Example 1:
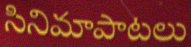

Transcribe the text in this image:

సినిమాపాటలు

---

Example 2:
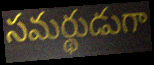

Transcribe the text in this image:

సమర్థుడుగా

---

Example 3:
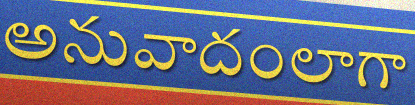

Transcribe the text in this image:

అనువాదంలాగా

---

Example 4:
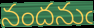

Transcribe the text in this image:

నందనుఁ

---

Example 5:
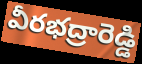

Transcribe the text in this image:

వీరభద్రారెడ్డి